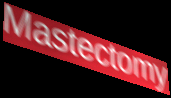
Mastectomy